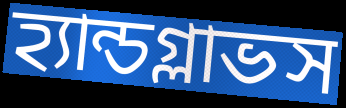
হ্যান্ডগ্লাভস